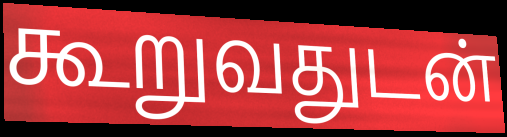
கூறுவதுடன்